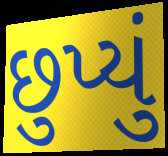
છુપ્યું